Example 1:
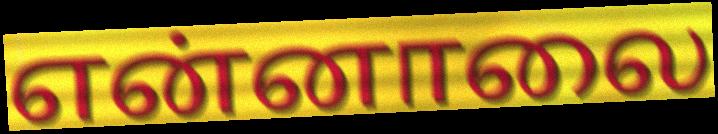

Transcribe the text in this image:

என்னாலை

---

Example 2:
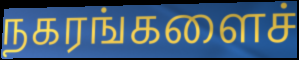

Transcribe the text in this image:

நகரங்களைச்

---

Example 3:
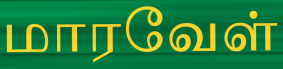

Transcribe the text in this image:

மாரவேள்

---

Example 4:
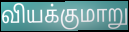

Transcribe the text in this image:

வியக்குமாறு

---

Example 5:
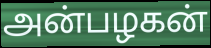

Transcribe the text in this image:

அன்பழகன்